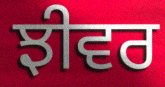
ਝੀਵਰ